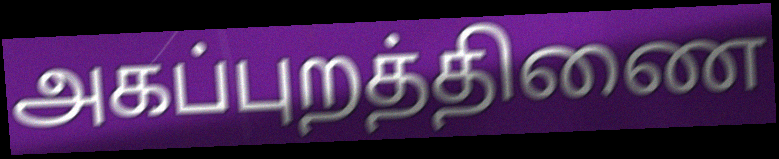
அகப்புறத்திணை